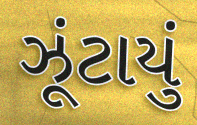
ઝૂંટાયું